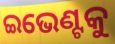
ଇଭେଣ୍ଟକୁ